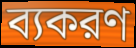
ব্যকরণ